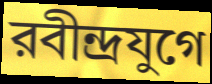
রবীন্দ্রযুগে